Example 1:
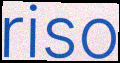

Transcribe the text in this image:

riso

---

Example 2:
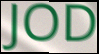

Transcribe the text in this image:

JOD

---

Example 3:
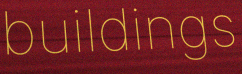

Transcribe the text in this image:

buildings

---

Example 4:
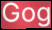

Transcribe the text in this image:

Gog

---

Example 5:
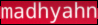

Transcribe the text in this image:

madhyahn